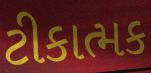
ટીકાત્મક